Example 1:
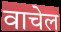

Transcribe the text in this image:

वाचेल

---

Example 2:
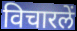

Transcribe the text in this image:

विचारलें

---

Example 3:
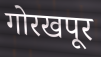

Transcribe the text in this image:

गोरखपूर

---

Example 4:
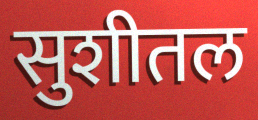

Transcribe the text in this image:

सुशीतल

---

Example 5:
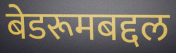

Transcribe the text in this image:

बेडरूमबद्दल